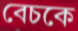
বেচকে